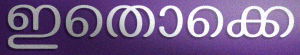
ഇതൊക്കെ